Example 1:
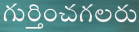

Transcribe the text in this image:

గుర్తించగలరు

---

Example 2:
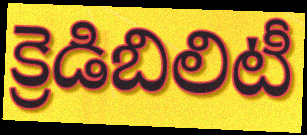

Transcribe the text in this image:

క్రెడిబిలిటీ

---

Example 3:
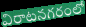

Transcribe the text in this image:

విరాటనగరంలో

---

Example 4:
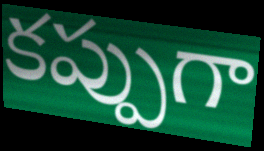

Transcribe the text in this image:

కప్పుగా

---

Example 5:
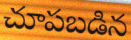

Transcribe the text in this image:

చూపబడిన